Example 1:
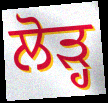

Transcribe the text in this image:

ਲੋੜ੍ਹ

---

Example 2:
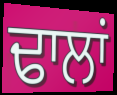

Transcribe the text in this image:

ਢਾਲਾਂ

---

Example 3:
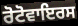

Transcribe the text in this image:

ਰੋਟੋਵਾਇਰਸ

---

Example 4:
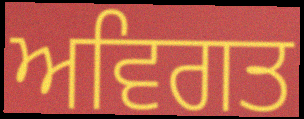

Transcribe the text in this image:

ਅਵਿਗਤ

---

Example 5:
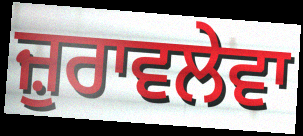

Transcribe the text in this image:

ਜ਼ੁਰਾਵਲੇਵਾ